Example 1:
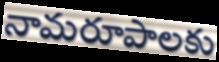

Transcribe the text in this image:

నామరూపాలకు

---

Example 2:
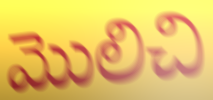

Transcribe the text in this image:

మొలిచి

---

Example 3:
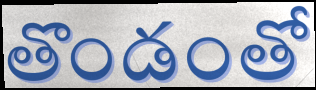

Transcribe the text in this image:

తొండంతో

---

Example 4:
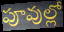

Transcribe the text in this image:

పూవుల్లో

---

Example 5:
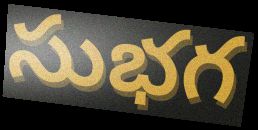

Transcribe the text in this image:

సుభగ